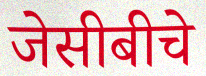
जेसीबीचे